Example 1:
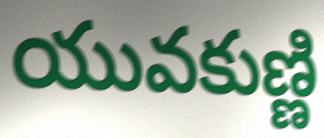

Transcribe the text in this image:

యువకుణ్ణి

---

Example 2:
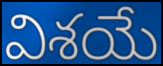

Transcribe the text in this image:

విశయే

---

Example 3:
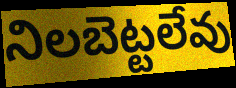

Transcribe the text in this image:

నిలబెట్టలేవు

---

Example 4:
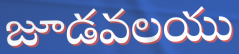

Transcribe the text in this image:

జూడవలయు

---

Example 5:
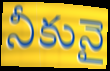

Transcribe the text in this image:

నీకునై